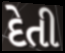
દેતી